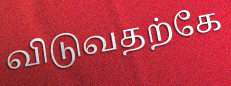
விடுவதற்கே